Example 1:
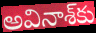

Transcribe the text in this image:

అవినాశ్‌కు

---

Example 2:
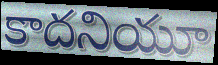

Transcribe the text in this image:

కాదనియూ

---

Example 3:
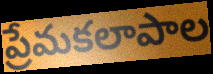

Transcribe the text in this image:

ప్రేమకలాపాల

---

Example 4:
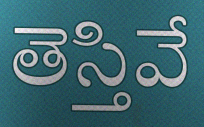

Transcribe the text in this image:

తెస్తివే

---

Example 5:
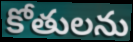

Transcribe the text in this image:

కోతులను